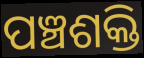
ପଞ୍ଚଶକ୍ତି